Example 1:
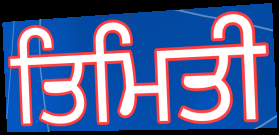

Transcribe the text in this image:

ਤਿਮਿਤੀ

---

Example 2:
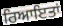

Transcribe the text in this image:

ਰਿਆਇਤਾਂ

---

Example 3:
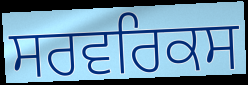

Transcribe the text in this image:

ਸਰਵਰਿਕਸ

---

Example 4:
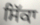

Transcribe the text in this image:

ਸਿੱਕਾ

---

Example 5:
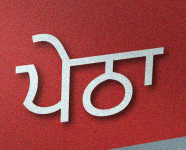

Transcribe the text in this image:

ਪੇਠਾ